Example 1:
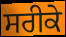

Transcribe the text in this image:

ਸਰੀਕੇ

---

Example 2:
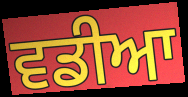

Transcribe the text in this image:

ਵਡੀਆ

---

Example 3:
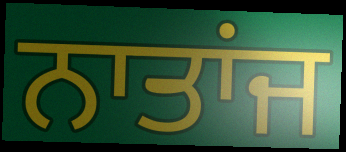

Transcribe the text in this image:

ਨਾਤਾਂਜ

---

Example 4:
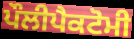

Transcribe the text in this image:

ਪੌਲੀਪੈਕਟੋਮੀ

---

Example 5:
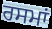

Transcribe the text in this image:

ਰਸਮਾਂ